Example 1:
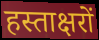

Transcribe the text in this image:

हस्ताक्षरों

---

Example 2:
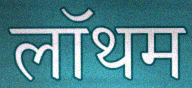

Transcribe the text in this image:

लॉथम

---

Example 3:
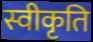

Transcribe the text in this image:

स्वीकृति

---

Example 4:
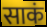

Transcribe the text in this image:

साकं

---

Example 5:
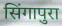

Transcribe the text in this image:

सिंगापुरा